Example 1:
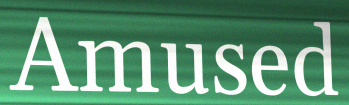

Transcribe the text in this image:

Amused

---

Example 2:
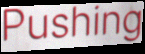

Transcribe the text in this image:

Pushing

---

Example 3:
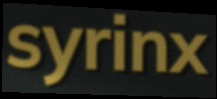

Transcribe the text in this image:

syrinx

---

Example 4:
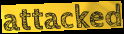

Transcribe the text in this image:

attacked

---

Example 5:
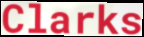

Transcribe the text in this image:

Clarks